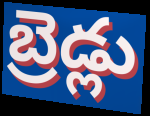
బ్రెడ్లు